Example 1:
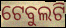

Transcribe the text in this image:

ଟେବୁଲଟି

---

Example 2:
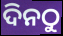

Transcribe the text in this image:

ଦିନଠୁ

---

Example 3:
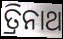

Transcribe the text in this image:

ତ୍ରିନାଥ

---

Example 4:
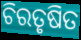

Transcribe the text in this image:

ଚିରତୃଷିତ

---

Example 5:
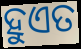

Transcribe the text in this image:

ହୁଏତ